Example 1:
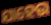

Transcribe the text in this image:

ଯାହେଉ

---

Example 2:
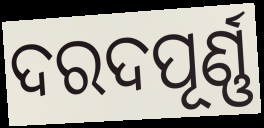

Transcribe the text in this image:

ଦରଦପୂର୍ଣ୍ଣ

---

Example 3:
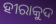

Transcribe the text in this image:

ହୀରାକୁଦ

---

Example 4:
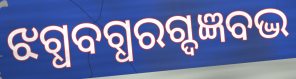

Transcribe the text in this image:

ଝଗ୍ଧବଗ୍ଧରଗ୍ଦଜ୍ଞବଦ୍ଭ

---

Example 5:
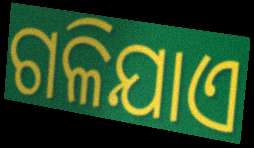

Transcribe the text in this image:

ଗଳିଯାଏ